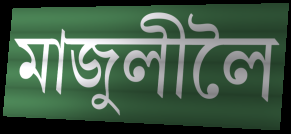
মাজুলীলৈ